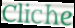
Cliche